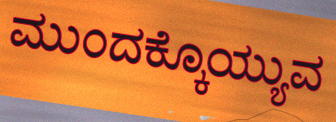
ಮುಂದಕ್ಕೊಯ್ಯುವ